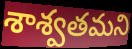
శాశ్వతమని